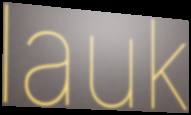
lauk